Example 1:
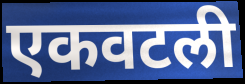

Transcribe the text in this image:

एकवटली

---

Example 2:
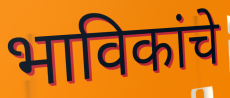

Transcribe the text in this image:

भाविकांचे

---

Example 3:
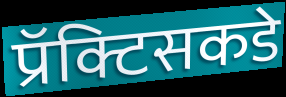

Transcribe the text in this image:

प्रॅक्टिसकडे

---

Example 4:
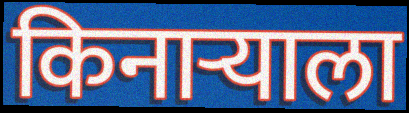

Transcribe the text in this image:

किनाऱ्याला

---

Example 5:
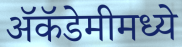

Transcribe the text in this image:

ॲकॅडेमीमध्ये